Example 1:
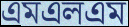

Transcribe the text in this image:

এমএলএম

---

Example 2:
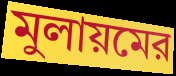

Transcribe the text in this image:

মুলায়মের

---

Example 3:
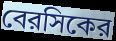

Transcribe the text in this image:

বেরসিকের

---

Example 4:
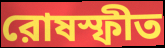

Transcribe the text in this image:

রোষস্ফীত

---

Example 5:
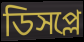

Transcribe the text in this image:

ডিসপ্লে